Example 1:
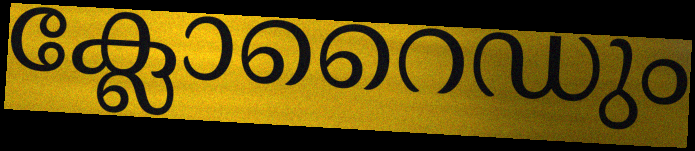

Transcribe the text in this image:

ക്ലോറൈഡും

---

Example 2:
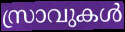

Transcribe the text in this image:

സ്രാവുകൾ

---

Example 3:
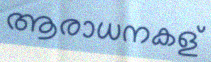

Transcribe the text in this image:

ആരാധനകള്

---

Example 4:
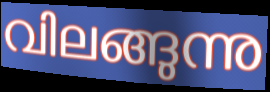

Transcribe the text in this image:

വിലങ്ങുന്നു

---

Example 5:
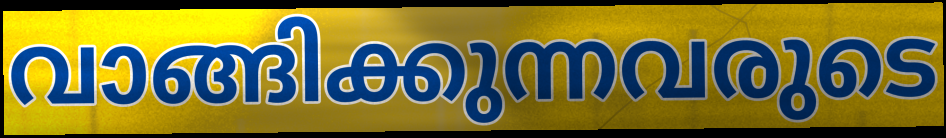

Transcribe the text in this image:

വാങ്ങിക്കുന്നവരുടെ